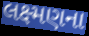
લક્ષ્મણના